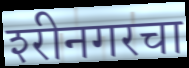
श्रीनगरचा